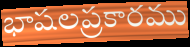
భాషలప్రకారము